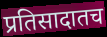
प्रतिसादातच